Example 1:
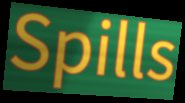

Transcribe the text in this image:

Spills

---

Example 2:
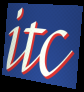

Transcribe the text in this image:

itc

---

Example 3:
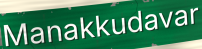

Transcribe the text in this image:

Manakkudavar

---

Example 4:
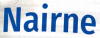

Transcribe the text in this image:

Nairne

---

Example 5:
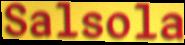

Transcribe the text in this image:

Salsola